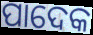
ପାଦେକ